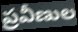
ప్రవీణుల